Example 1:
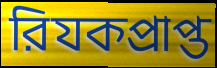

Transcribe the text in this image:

রিযকপ্রাপ্ত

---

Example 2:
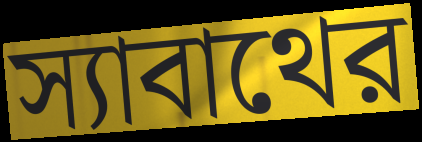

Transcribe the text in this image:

স্যাবাথের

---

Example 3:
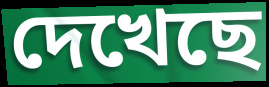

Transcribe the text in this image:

দেখেছে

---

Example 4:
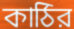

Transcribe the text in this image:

কাঠির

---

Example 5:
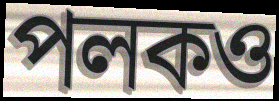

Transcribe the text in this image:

পলকও